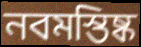
নবমস্তিষ্ক